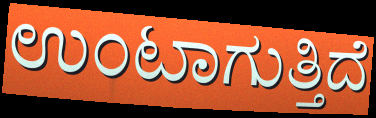
ಉಂಟಾಗುತ್ತಿದೆ